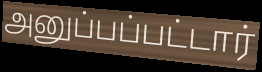
அனுப்பப்பட்டார்